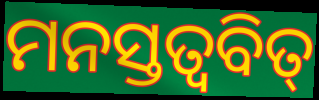
ମନସ୍ତତ୍ୱବିତ୍